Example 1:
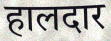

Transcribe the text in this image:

हालदार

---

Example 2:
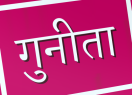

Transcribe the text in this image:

गुनीता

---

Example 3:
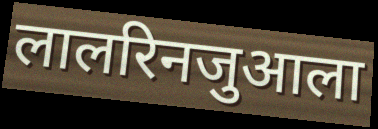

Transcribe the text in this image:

लालरिनजुआला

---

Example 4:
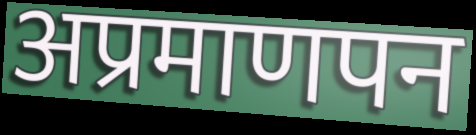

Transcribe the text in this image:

अप्रमाणपन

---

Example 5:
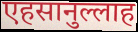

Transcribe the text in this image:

एहसानुल्लाह